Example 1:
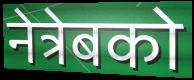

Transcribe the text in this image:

नेत्रेबको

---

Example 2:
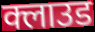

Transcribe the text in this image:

क्‍लाउड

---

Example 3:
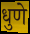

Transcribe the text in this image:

धुणे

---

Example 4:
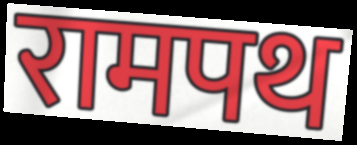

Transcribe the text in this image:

रामपथ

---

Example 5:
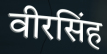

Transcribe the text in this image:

वीरसिंह